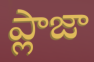
ప్లాజా